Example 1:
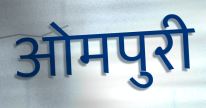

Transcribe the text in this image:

ओमपुरी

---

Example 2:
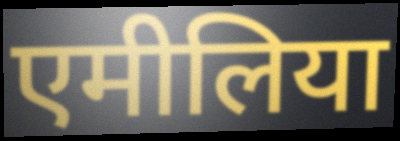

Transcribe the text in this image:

एमीलिया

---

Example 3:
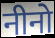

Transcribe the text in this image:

नीनो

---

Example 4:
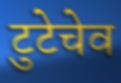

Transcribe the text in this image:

टुटेचेव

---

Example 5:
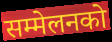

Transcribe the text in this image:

सम्मेलनको